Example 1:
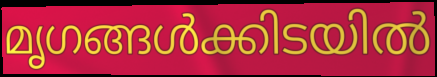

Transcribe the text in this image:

മൃഗങ്ങൾക്കിടയിൽ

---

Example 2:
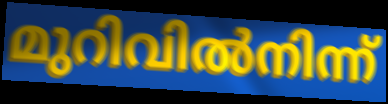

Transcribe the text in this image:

മുറിവിൽനിന്ന്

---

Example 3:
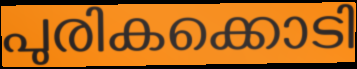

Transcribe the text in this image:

പുരികക്കൊടി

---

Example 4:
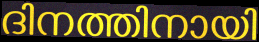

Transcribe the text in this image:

ദിനത്തിനായി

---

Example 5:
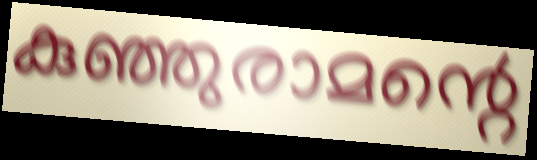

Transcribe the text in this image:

കുഞ്ഞുരാമന്റെ